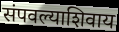
संपवल्याशिवाय